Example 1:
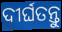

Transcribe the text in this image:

ଦୀର୍ଘତନ୍ତୁ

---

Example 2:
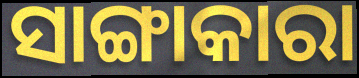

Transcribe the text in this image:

ସାଙ୍ଗାକାରା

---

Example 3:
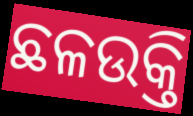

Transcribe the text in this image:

ଛଳଉକ୍ତି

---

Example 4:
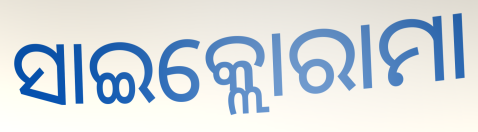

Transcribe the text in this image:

ସାଇକ୍ଲୋରାମା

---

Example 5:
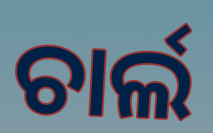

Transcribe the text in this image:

ଚାର୍ଲ